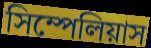
সিম্পেলিয়াস